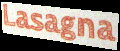
Lasagna